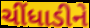
ચીંધાડીને